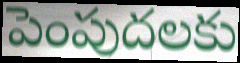
పెంపుదలకు